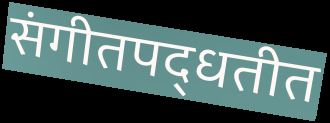
संगीतपद्धतीत